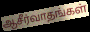
ஆசீர்வாதங்கள்